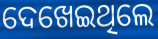
ଦେଖେଇଥିଲେ